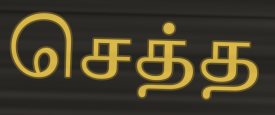
செத்த